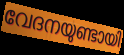
വേദനയുണ്ടായി